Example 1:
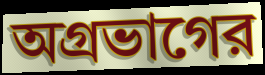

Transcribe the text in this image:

অগ্রভাগের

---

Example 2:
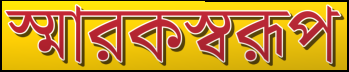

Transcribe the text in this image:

স্মারকস্বরূপ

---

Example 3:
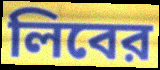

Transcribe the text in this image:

লিবের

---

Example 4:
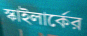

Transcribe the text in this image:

স্কাইলার্কের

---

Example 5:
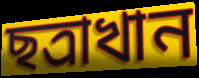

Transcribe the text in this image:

ছত্রাখান